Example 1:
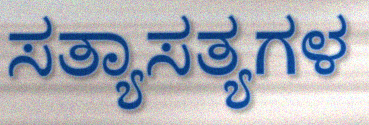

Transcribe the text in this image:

ಸತ್ಯಾಸತ್ಯಗಳ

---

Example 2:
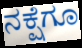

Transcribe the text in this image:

ನಕ್ಷೆಗೂ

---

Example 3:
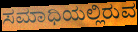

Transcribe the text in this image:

ಸಮಾಧಿಯಲ್ಲಿರುವ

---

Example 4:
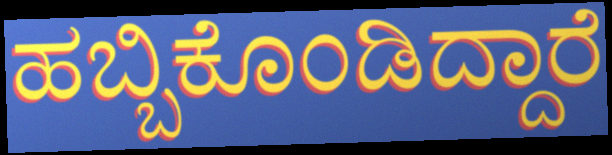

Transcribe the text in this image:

ಹಬ್ಬಿಕೊಂಡಿದ್ದಾರೆ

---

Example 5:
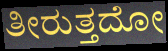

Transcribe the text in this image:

ತೀರುತ್ತದೋ